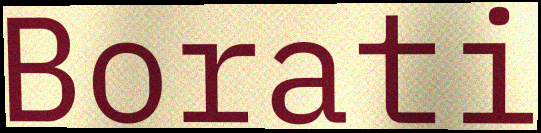
Borati